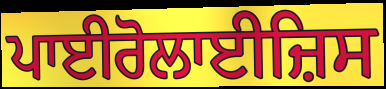
ਪਾਈਰੋਲਾਈਜ਼ਿਸ